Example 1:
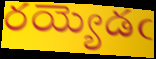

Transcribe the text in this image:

రయ్యెడఁ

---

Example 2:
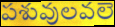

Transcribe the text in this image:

పశువులవలె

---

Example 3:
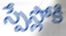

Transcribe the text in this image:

స్పేస్లోకి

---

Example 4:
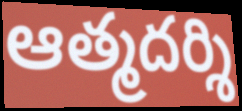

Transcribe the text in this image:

ఆత్మదర్శి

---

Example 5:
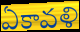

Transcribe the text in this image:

ఏకావళి